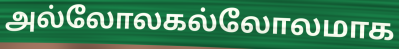
அல்லோலகல்லோலமாக